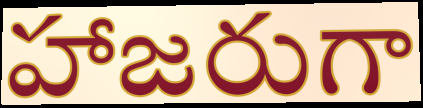
హాజరుగా